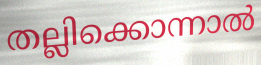
തല്ലിക്കൊന്നാൽ